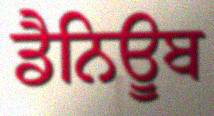
ਡੈਨਿਊਬ